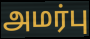
அமர்பு